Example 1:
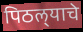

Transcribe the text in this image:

पिठल्याचे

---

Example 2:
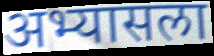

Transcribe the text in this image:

अभ्यासला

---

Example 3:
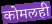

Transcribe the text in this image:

कोमलही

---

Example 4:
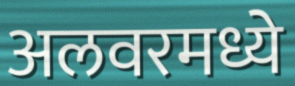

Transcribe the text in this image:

अलवरमध्ये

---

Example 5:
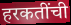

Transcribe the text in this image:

हरकतींची